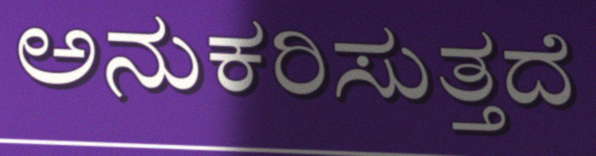
ಅನುಕರಿಸುತ್ತದೆ